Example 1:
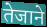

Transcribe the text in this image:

तेजाने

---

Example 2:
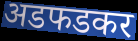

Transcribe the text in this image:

अडफडकर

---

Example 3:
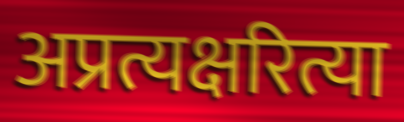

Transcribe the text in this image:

अप्रत्यक्षरित्या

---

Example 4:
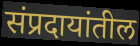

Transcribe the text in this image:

संप्रदायांतील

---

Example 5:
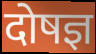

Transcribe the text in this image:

दोषज्ञ